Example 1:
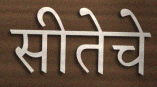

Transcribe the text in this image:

सीतेचे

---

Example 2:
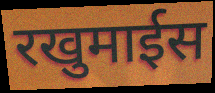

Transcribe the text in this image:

रखुमाईस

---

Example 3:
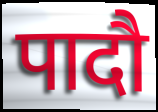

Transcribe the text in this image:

पादौ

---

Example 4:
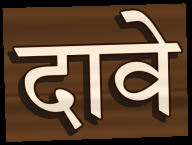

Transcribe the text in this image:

दावे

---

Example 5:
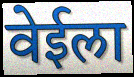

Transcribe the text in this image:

वेईला